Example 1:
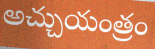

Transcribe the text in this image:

అచ్చుయంత్రం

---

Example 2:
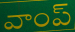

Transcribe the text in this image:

వాంప్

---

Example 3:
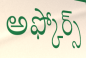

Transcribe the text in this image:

అఫ్కోర్స్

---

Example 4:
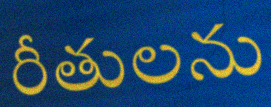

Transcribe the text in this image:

రీతులను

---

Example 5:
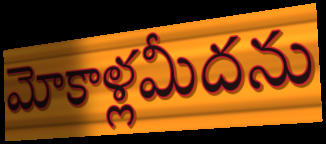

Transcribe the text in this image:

మోకాళ్లమీదను